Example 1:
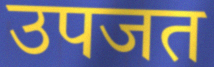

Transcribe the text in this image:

उपजत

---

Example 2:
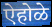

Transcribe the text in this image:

ऐहोळे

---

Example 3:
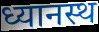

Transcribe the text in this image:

ध्यानस्थ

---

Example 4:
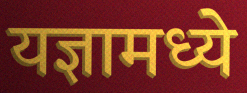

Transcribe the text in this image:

यज्ञामध्ये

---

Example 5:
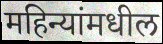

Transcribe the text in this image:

महिन्यांमधील